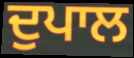
ਦੁਪਾਲ